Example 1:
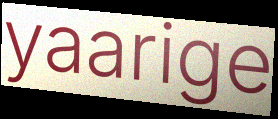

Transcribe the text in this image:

yaarige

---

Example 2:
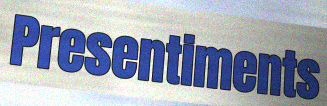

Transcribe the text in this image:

Presentiments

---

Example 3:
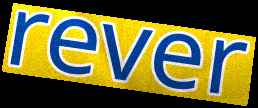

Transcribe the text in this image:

rever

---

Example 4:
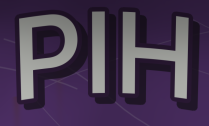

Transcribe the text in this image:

PIH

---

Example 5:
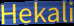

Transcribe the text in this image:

Hekali